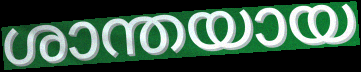
ശാന്തയായ